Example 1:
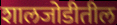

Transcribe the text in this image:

शालजोडीतील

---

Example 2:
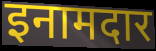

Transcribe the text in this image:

इनामदार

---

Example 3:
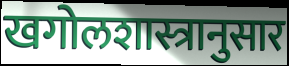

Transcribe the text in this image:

खगोलशास्त्रानुसार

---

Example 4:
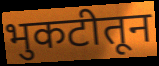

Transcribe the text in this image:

भुकटीतून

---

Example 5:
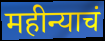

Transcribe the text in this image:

महीन्याचं